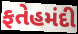
ફતેહમંદી